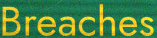
Breaches